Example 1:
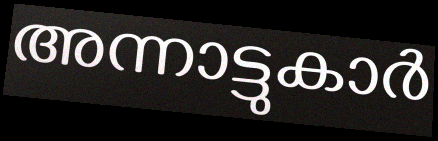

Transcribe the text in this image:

അന്നാട്ടുകാർ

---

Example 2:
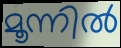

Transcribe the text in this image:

മൂന്നിൽ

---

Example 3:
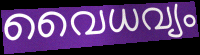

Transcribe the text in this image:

വൈധവ്യം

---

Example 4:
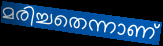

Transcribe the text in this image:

മരിച്ചതെന്നാണ്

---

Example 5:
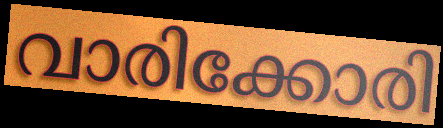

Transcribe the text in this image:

വാരിക്കോരി